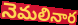
నెమలినార